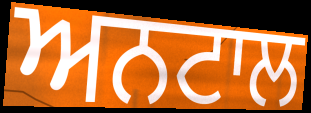
ਅਨਟਾਲ